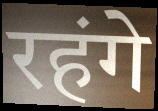
रहंगे